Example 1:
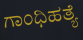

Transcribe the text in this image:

ಗಾಂಧಿಹತ್ಯೆ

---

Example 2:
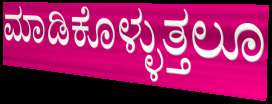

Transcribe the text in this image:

ಮಾಡಿಕೊಳ್ಳುತ್ತಲೂ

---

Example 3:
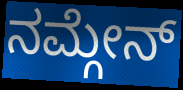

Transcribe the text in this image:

ನಮ್ಗೇನ್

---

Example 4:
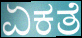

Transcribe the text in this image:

ಏಕತೆ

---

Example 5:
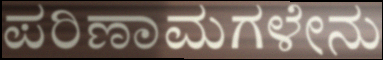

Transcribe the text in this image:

ಪರಿಣಾಮಗಳೇನು